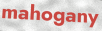
mahogany